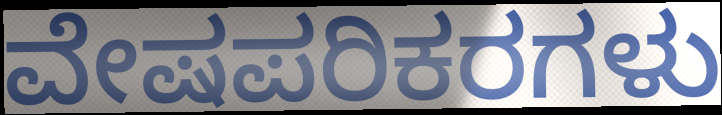
ವೇಷಪರಿಕರಗಳು